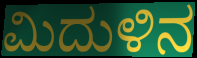
ಮಿದುಳಿನ